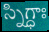
స్నిగ్ధాః